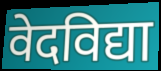
वेदविद्या